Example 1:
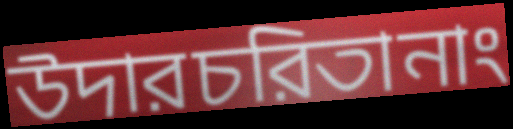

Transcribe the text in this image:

উদারচরিতানাং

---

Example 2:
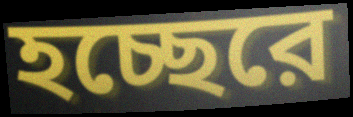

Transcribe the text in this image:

হচ্ছেরে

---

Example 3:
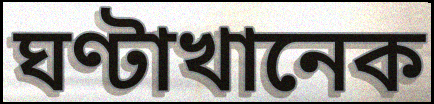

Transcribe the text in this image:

ঘণ্টাখানেক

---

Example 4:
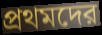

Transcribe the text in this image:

প্রথমদের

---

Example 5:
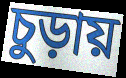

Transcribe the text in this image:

চুড়ায়